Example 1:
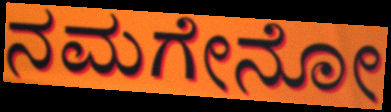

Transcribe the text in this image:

ನಮಗೇನೋ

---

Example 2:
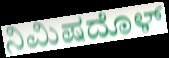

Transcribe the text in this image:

ನಿಮಿಷದೊಳ್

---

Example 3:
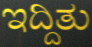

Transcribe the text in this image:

ಇದ್ದಿತು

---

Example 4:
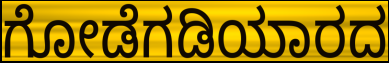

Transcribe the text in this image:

ಗೋಡೆಗಡಿಯಾರದ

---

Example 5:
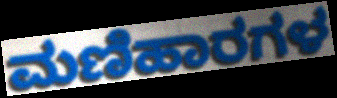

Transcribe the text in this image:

ಮಣಿಹಾರಗಳ